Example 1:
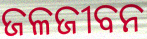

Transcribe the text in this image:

ଜଳଜୀବନ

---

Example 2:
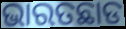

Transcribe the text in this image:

ଭାରତଛାଡ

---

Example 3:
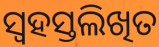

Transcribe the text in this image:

ସ୍ୱହସ୍ତଲିଖିତ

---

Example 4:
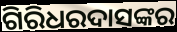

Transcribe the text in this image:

ଗିରିଧରଦାସଙ୍କର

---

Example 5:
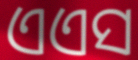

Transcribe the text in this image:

ଏଏସ